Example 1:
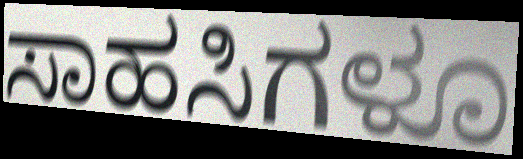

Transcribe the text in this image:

ಸಾಹಸಿಗಳೂ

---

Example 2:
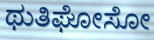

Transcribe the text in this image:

ಥುತಿಘೋಸೋ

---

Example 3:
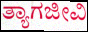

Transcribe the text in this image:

ತ್ಯಾಗಜೀವಿ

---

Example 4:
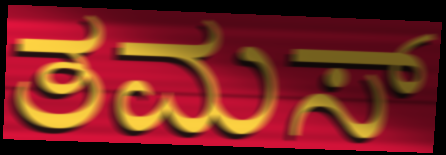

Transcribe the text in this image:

ತಮಸ್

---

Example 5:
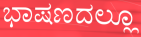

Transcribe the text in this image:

ಭಾಷಣದಲ್ಲೂ